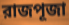
রাজপূজা